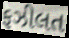
ફઝીલત